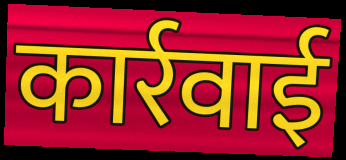
कार्रवाई